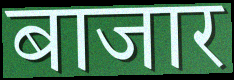
बाजार